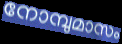
നോമ്പുമാസം